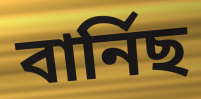
বাৰ্নিছ